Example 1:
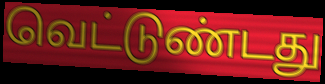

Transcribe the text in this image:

வெட்டுண்டது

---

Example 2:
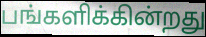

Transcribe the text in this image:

பங்களிக்கின்றது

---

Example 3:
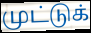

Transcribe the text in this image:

முட்டுக்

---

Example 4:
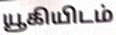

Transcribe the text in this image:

யூகியிடம்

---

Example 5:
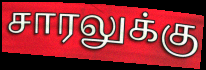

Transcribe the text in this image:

சாரலுக்கு